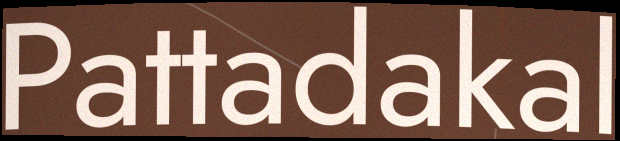
Pattadakal